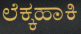
ಲೆಕ್ಕಹಾಕಿ